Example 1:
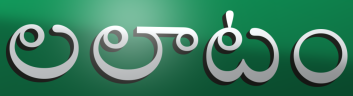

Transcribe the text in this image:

లలాటం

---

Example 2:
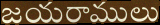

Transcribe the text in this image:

జయరాములు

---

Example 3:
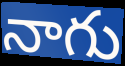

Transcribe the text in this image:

నాగు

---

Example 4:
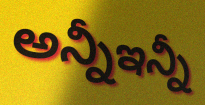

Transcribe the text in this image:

అన్నీఇన్నీ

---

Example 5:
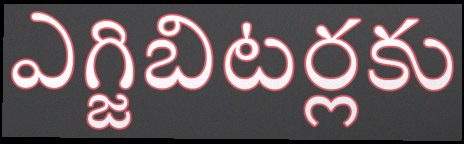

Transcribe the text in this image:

ఎగ్జిబిటర్లకు